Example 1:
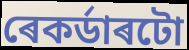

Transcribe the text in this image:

ৰেকৰ্ডাৰটো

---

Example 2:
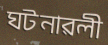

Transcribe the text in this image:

ঘটনাৱলী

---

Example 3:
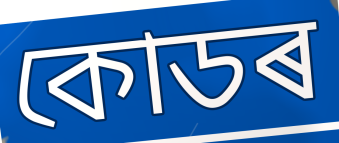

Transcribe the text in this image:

কোডৰ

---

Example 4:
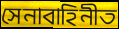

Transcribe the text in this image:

সেনাবাহিনীত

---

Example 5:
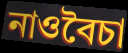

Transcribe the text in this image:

নাওবৈচা